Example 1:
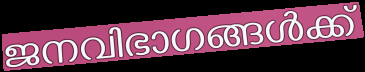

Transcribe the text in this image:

ജനവിഭാഗങ്ങൾക്ക്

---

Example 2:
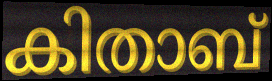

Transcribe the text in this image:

കിതാബ്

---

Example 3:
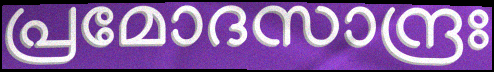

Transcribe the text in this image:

പ്രമോദസാന്ദ്രഃ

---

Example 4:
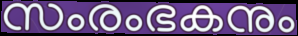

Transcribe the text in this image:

സംരംഭകനും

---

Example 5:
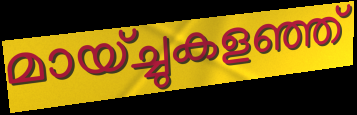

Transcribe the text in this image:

മായ്ച്ചുകളഞ്ഞ്